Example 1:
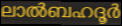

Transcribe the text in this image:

ലാൽബഹദൂർ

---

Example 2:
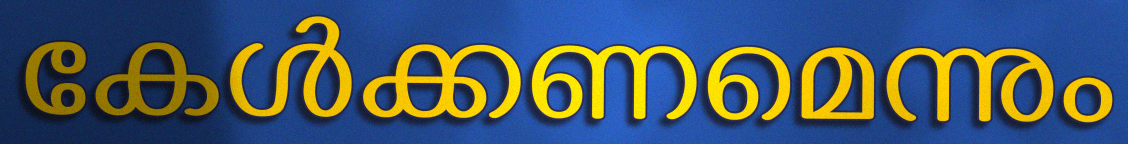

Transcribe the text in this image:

കേൾക്കണമെന്നും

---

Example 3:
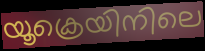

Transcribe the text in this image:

യൂക്രെയിനിലെ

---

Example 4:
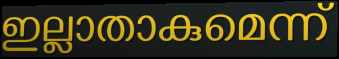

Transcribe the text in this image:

ഇല്ലാതാകുമെന്ന്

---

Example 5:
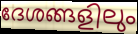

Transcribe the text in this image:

ദേശങ്ങളിലും